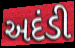
અદંડી